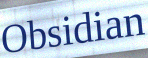
Obsidian